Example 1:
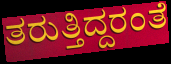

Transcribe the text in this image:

ತರುತ್ತಿದ್ದರಂತೆ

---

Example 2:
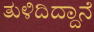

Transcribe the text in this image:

ತುಳಿದಿದ್ದಾನೆ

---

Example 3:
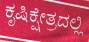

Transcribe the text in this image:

ಕೃಷಿಕ್ಷೇತ್ರದಲ್ಲಿ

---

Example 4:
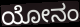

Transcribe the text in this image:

ಯೋನಂ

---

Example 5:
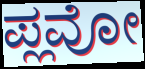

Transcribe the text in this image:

ಪ್ಲವೋ